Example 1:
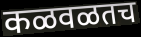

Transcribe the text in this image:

कळवळतच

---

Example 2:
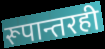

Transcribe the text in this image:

रूपान्तरही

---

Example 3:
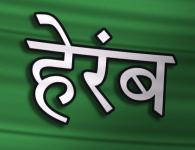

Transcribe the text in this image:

हेरंब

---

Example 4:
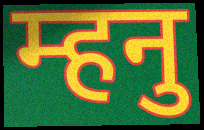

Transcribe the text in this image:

म्हनु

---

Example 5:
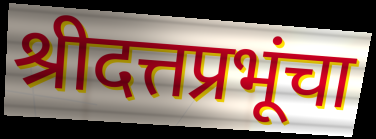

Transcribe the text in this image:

श्रीदत्तप्रभूंचा